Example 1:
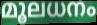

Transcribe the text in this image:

മൂലധനം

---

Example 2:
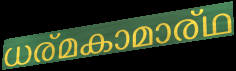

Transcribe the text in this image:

ധര്മകാമാര്ഥ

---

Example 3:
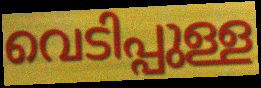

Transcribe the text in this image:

വെടിപ്പുള്ള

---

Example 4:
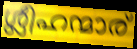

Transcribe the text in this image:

ശ്ലീഹന്മാര്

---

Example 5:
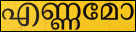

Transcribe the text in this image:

എണ്ണമോ